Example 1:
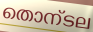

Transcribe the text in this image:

തൊന്ടല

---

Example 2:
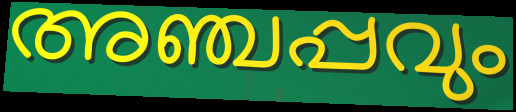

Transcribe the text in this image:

അഞ്ചപ്പവും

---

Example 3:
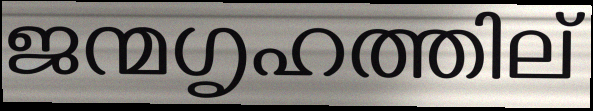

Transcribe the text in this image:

ജന്മഗൃഹത്തില്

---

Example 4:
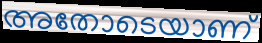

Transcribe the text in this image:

അതോടെയാണ്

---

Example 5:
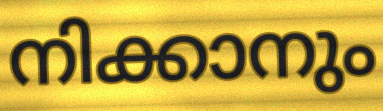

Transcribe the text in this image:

നിക്കാനും